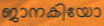
ജാനകിയോ